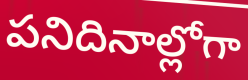
పనిదినాల్లోగా